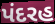
પંદરહ